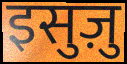
इसुज़ु